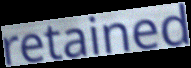
retained